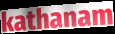
kathanam